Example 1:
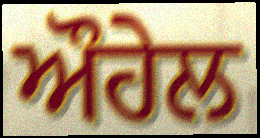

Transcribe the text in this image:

ਔਹੇਲ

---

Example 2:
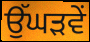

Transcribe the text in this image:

ਉੱਘੜਵੇਂ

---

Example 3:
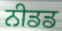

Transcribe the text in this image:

ਨੀਡਡ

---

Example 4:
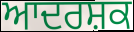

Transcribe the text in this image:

ਆਦਰਸ਼ਕ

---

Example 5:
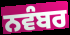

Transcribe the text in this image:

ਨਵੰਬਰ